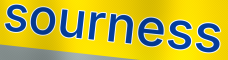
sourness